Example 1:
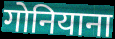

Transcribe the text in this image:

गोनियाना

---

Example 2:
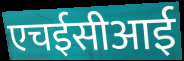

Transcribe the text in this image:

एचईसीआई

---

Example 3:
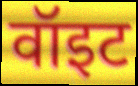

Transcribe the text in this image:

वॉइट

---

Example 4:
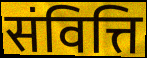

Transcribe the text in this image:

संवित्ति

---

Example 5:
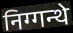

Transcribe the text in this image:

निग्गन्थे